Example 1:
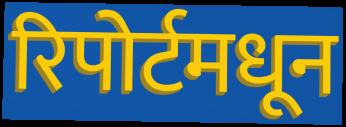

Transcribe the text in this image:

रिपोर्टमधून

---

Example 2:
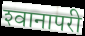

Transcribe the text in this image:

श्वानापरी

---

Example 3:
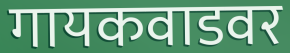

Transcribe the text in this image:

गायकवाडवर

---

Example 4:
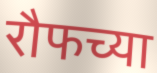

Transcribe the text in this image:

रौफच्या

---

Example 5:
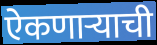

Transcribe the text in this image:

ऐकणार्‍याची